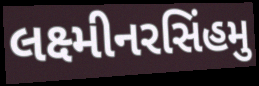
લક્ષ્મીનરસિંહમુ